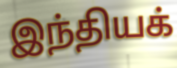
இந்தியக்